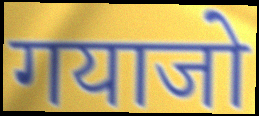
गयाजो